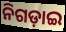
ନିଗଡ଼ାଇ